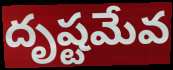
దృష్టమేవ